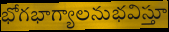
భోగభాగ్యాలనుభవిస్తూ